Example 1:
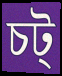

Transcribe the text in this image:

চট্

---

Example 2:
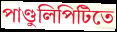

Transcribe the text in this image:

পাণ্ডুলিপিটিতে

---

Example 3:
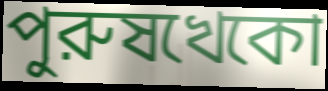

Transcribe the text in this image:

পুরুষখেকো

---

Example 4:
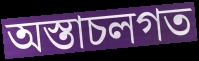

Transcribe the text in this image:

অস্তাচলগত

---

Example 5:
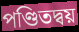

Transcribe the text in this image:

পণ্ডিতদ্বয়